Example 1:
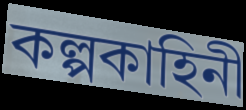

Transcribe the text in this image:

কল্পকাহিনী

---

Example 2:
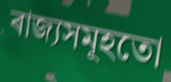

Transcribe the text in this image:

ৰাজ্যসমূহতো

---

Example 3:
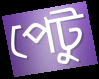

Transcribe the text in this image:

পেটু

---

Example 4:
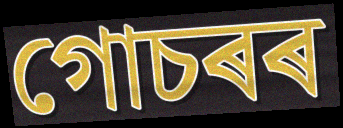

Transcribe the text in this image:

গোচৰৰ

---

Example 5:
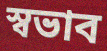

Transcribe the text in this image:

স্বভাব